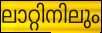
ലാറ്റിനിലും